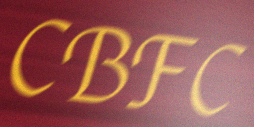
CBFC